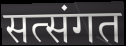
सत्संगत